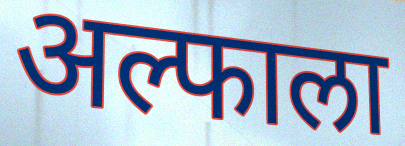
अल्फाला